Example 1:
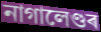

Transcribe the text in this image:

নাগালেণ্ডৰ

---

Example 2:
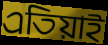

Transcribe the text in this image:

এতিয়াই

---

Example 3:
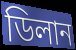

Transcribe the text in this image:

ডিলান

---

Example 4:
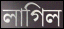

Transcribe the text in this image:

লাগিল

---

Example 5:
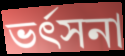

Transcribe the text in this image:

ভৰ্ৎসনা